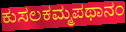
ಕುಸಲಕಮ್ಮಪಥಾನಂ